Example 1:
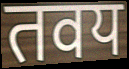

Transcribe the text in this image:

तवय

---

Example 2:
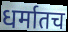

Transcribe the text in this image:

धर्मातच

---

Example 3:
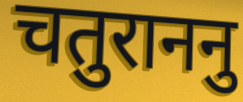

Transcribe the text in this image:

चतुराननु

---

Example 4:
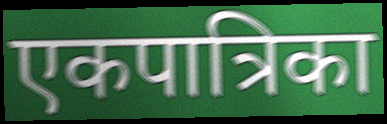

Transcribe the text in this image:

एकपात्रिका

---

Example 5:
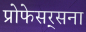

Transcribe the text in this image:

प्रोफेसर्सना